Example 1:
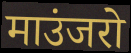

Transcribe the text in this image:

माउंजरो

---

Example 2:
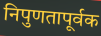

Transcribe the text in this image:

निपुणतापूर्वक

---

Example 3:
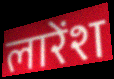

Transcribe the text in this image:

लारेंश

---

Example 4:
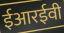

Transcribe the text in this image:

ईआरईवी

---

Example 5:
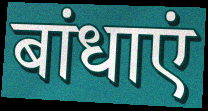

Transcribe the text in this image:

बांधाएं